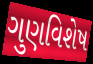
ગુણવિશેષ